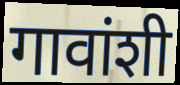
गावांशी